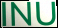
INU